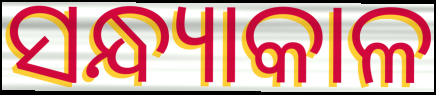
ସନ୍ଧ୍ୟାକାଳ